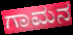
ಗಾಮನ